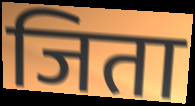
जिता